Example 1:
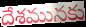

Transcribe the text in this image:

దేశమునకు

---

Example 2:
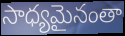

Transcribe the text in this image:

సాధ్యమైనంతా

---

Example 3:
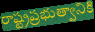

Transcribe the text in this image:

రాష్ట్రప్రభుత్వానికి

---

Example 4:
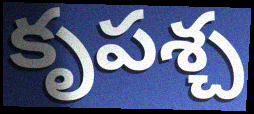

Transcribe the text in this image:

కృపశ్చ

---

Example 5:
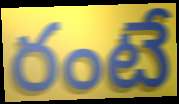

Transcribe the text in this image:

రంటే